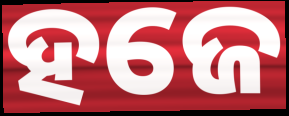
ହଜେ